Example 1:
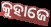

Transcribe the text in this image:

କୁହାଜେ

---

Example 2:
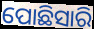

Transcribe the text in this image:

ପୋଛିସାରି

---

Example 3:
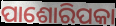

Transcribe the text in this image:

ପାଶୋରିପକା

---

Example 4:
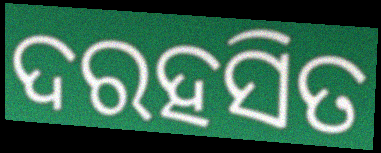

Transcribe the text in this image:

ଦରହସିତ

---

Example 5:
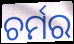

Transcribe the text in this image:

ଚର୍ମର